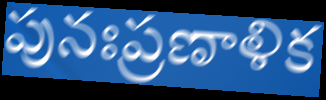
పునఃప్రణాళిక